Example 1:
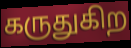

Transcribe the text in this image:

கருதுகிற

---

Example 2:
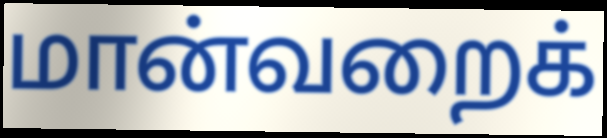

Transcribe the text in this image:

மான்வறைக்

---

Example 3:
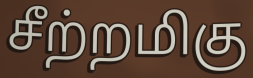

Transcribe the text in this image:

சீற்றமிகு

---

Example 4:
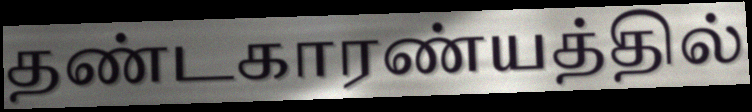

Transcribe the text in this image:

தண்டகாரண்யத்தில்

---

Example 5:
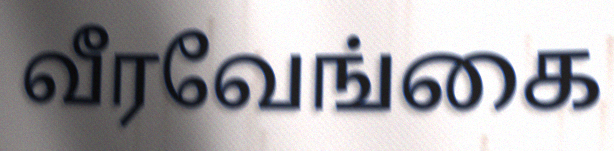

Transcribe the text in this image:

வீரவேங்கை